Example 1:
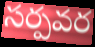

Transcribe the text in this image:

సర్పవర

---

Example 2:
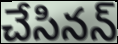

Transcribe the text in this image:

చేసినన్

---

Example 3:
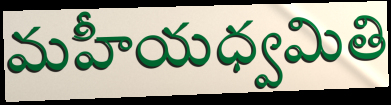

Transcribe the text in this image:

మహీయధ్వమితి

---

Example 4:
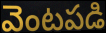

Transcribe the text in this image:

వెంటపడి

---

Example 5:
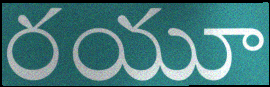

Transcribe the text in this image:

రయూ